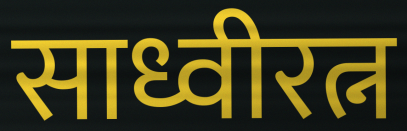
साध्वीरत्न